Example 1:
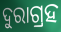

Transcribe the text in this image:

ଦୁରାଗ୍ରହ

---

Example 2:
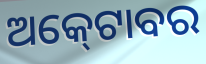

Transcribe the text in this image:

ଅକ୍‍ଟୋବର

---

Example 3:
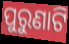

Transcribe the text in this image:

ପୁରୁଣାଟି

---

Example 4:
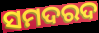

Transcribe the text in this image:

ସମଦରଦ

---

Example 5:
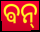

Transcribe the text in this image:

ଵନ୍